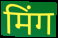
मिंग